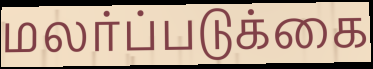
மலர்ப்படுக்கை